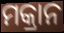
ମକ୍ରାନ